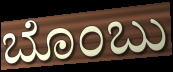
ಬೊಂಬು